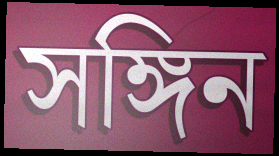
সঙ্গিন